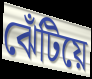
ঝেঁটিয়ে